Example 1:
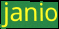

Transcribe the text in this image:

janio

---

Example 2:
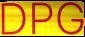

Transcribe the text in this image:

DPG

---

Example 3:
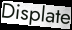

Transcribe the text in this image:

Displate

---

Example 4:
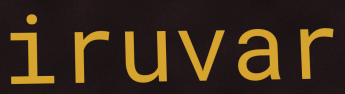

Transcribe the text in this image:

iruvar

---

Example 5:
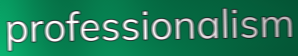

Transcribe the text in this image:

professionalism